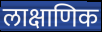
लाक्षाणिक